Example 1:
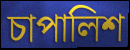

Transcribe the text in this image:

চাপালিশ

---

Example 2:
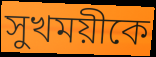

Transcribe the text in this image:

সুখময়ীকে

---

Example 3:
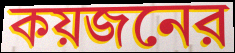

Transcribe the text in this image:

কয়জনের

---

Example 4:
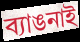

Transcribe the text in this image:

ব্যাঙনাই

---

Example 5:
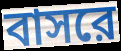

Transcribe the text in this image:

বাসরে